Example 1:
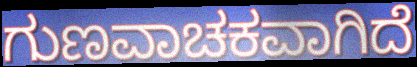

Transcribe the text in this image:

ಗುಣವಾಚಕವಾಗಿದೆ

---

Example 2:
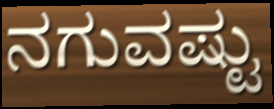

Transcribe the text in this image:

ನಗುವಷ್ಟು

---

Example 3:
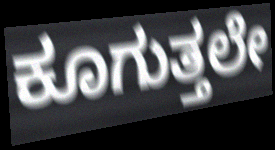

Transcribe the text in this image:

ಕೂಗುತ್ತಲೇ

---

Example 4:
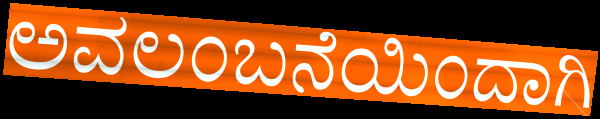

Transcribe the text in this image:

ಅವಲಂಬನೆಯಿಂದಾಗಿ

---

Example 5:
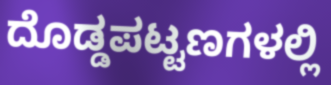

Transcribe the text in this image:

ದೊಡ್ಡಪಟ್ಟಣಗಳಲ್ಲಿ